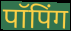
पॉपिंग